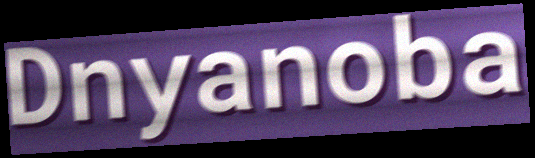
Dnyanoba